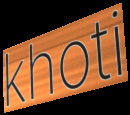
khoti